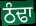
ਠੰਢਾ